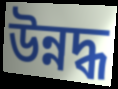
উন্নদ্ধ